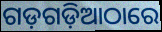
ଗଡ଼ଗଡ଼ିଆଠାରେ